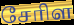
சேரிள